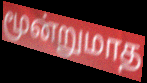
மூன்றுமாத